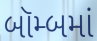
બૉમ્બમાં